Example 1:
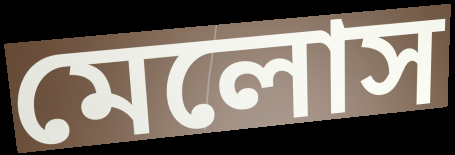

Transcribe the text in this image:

মেলোস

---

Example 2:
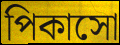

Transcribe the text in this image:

পিকাসো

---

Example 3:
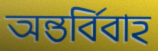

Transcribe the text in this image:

অন্তর্বিবাহ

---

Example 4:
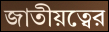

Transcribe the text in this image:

জাতীয়ত্বের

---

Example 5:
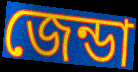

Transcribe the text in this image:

জেন্ডা